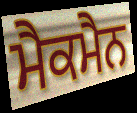
ਮੈਕਮੈਨ